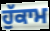
ਹੁੱਕਾਮ